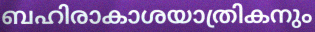
ബഹിരാകാശയാത്രികനും